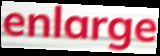
enlarge